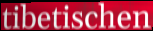
tibetischen